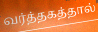
வர்த்தகத்தால்